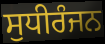
ਸੁਧੀਰੰਜਨ